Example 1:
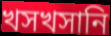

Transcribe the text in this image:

খসখসানি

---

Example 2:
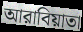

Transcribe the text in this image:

আরাবিয়াতা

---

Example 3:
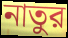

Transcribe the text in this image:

নাতুর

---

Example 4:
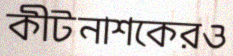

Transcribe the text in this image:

কীটনাশকেরও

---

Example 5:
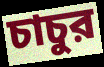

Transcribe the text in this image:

চাচুর